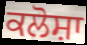
ਕਲੋਸ਼ਾ